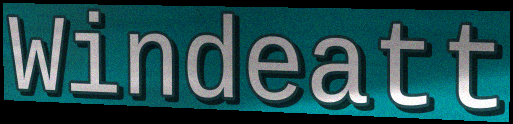
Windeatt